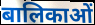
बालिकाओं